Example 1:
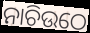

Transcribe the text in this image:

ନାଚିଉଠେ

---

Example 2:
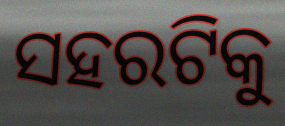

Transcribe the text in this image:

ସହରଟିକୁ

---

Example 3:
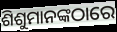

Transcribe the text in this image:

ଶିଶୁମାନଙ୍କଠାରେ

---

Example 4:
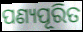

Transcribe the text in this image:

ପଣ୍ୟପୂରିତ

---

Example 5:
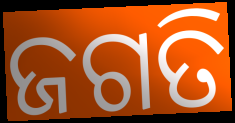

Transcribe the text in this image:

ଜଗତି